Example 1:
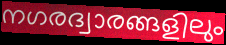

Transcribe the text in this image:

നഗരദ്വാരങ്ങളിലും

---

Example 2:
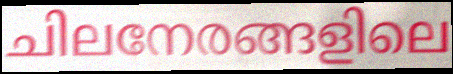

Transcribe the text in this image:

ചിലനേരങ്ങളിലെ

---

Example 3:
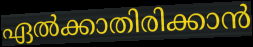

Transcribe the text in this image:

ഏൽക്കാതിരിക്കാൻ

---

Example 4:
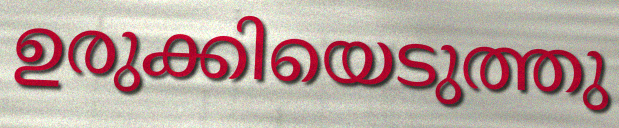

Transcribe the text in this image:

ഉരുക്കിയെടുത്തു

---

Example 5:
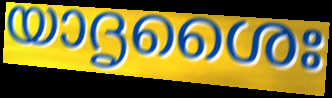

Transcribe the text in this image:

യാദൃശൈഃ